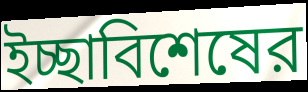
ইচ্ছাবিশেষের